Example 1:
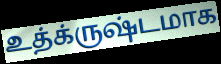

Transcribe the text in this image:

உத்க்ருஷ்டமாக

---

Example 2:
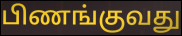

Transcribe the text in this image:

பிணங்குவது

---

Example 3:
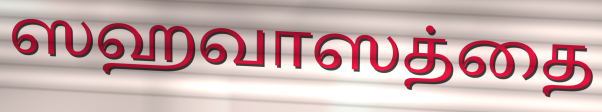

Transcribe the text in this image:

ஸஹவாஸத்தை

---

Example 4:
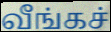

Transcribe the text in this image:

வீங்கச்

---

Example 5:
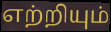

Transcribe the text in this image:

எற்றியும்